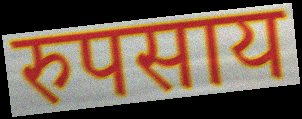
रुपसाय